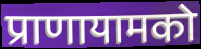
प्राणायामको